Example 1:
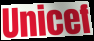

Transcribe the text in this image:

Unicef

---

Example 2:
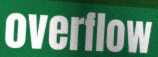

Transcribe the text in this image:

overflow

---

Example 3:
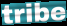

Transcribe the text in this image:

tribe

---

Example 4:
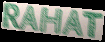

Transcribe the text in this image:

RAHAT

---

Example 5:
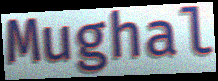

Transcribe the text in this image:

Mughal